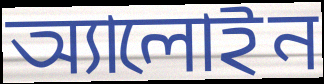
অ্যালোইন